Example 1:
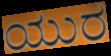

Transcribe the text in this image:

ಯುರ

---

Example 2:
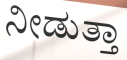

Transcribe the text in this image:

ನೀಡುತ್ತಾ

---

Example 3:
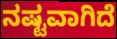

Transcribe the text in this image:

ನಷ್ಟವಾಗಿದೆ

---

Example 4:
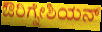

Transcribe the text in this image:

ಔರಿಗ್ನೇಶಿಯನ್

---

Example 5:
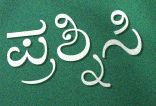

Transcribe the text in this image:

ಪ್ರಶ್ನಿಸಿ